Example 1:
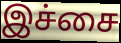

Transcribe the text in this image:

இச்சை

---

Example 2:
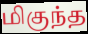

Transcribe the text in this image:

மிகுந்த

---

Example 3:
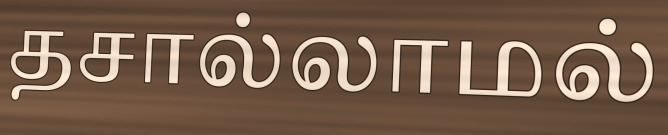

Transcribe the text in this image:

தசால்லாமல்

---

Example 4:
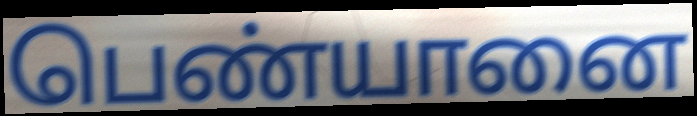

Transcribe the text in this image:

பெண்யானை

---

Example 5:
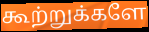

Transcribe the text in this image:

கூற்றுக்களே